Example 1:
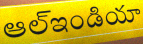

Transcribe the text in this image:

ఆల్ఇండియా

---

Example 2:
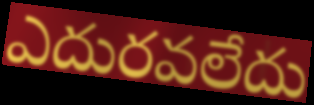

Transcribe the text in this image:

ఎదురవలేదు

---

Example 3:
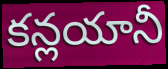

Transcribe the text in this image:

కన్లయానీ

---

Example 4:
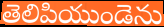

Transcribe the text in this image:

తెలిపియుండెను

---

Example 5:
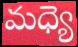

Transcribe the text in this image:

మధ్యె